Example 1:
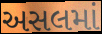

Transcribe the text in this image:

અસલમાં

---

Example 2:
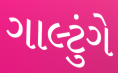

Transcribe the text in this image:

ગાલ્ટુંગે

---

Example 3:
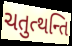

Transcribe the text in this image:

ચતુત્થન્તિ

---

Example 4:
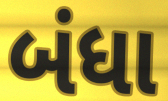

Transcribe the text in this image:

બંધા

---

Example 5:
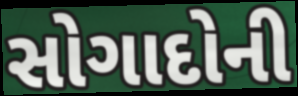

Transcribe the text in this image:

સોગાદોની